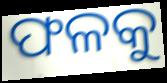
ଫଳକୁ